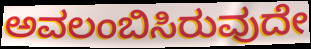
ಅವಲಂಬಿಸಿರುವುದೇ